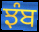
ਝੰਬ